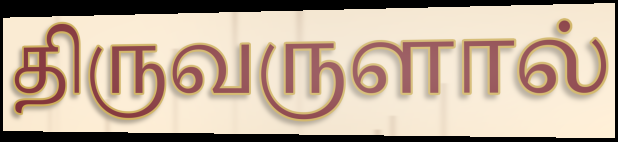
திருவருளால்